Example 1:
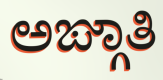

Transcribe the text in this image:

ಅಙ್ಗಾತಿ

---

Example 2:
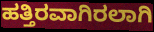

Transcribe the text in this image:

ಹತ್ತಿರವಾಗಿರಲಾಗಿ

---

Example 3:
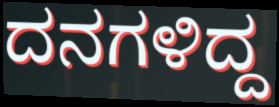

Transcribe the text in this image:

ದನಗಳಿದ್ದ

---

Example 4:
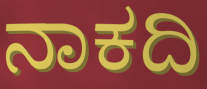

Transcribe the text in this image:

ನಾಕದಿ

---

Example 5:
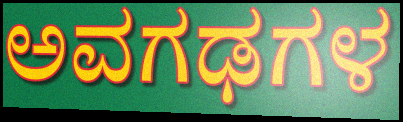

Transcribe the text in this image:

ಅವಗಢಗಳ